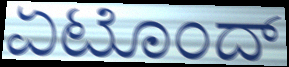
ಏಟೊಂದ್